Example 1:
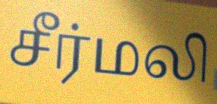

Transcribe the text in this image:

சீர்மலி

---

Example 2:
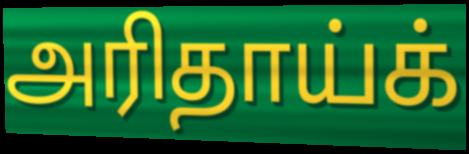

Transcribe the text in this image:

அரிதாய்க்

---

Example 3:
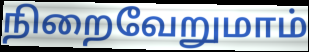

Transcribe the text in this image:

நிறைவேறுமாம்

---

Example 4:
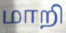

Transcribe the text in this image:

மாறி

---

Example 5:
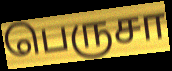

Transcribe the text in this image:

பெருசா